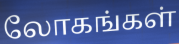
லோகங்கள்